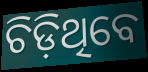
ଚିଡ଼ିଥିବେ